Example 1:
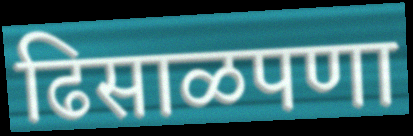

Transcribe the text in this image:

ढिसाळपणा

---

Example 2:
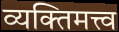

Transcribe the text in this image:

व्यक्तिमत्त्व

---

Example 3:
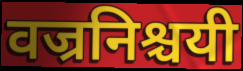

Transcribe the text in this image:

वज्रनिश्चयी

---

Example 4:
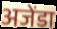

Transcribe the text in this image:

अजेंडा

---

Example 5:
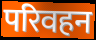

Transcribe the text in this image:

परिवहन